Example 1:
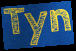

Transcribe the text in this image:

Tyn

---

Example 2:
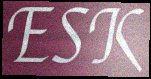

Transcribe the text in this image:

ESK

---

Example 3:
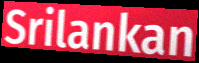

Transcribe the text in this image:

Srilankan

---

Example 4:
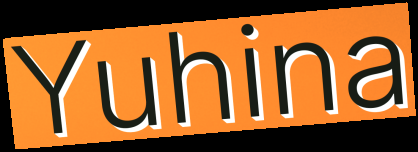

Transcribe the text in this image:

Yuhina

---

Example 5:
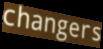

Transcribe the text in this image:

changers